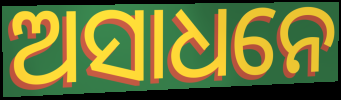
ଅସାଧନେ